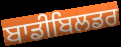
ਬਾਡੀਬਿਲਡਰ